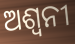
ଅଶ୍ୱନୀ